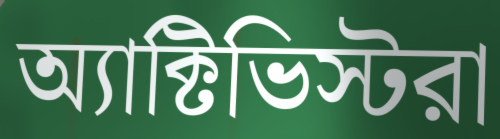
অ্যাক্টিভিস্টরা